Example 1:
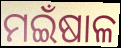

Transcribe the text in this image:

ମଇଁଷାଳ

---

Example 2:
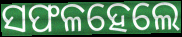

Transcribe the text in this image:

ସଫଳହେଲେ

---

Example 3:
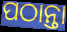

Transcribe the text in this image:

ପଠାନ୍ତା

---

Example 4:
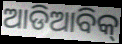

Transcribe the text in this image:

ଆଡିଆବିକ୍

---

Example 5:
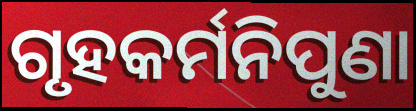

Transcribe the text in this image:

ଗୃହକର୍ମନିପୁଣା